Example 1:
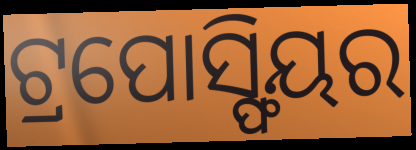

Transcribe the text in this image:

ଟ୍ରପୋସ୍ଫିୟର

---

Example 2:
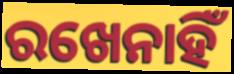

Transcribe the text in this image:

ରଖେନାହିଁ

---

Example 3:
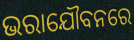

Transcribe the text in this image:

ଭରାଯୌବନରେ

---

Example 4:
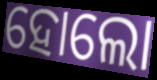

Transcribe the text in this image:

ହୋଲୋ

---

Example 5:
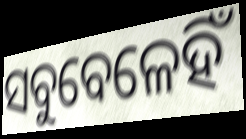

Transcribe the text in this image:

ସବୁବେଳେହିଁ